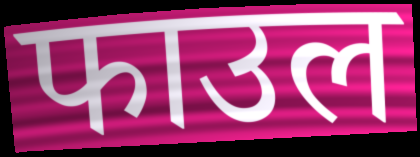
फाउल